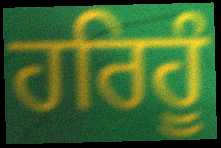
ਹਰਿਹੂੰ